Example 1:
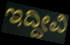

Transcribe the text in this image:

ಇದ್ದೀವಿ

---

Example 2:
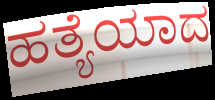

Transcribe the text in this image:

ಹತ್ಯೆಯಾದ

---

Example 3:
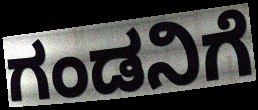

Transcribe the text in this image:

ಗಂಡನಿಗೆ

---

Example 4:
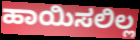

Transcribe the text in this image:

ಹಾಯಿಸಲಿಲ್ಲ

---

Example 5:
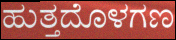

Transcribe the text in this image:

ಹುತ್ತದೊಳಗಣ